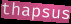
thapsus